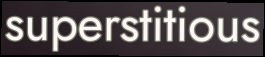
superstitious